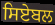
ਸਿਏਬਲ